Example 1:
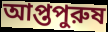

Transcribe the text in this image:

আপ্তপুরুষ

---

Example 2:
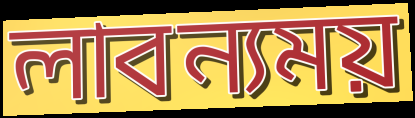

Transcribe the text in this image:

লাবন্যময়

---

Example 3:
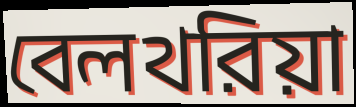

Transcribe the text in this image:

বেলথরিয়া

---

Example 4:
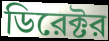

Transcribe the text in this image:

ডিরেক্টর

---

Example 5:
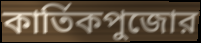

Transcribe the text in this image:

কার্তিকপুজোর